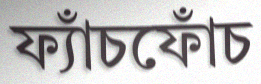
ফ্যাঁচফোঁচ